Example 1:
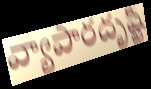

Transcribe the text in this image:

వ్యాపారదృష్టి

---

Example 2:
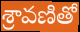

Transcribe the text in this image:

శ్రావణితో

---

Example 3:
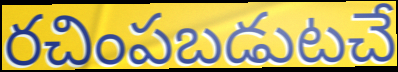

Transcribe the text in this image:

రచింపబడుటచే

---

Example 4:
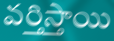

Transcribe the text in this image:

వర్తిస్తాయి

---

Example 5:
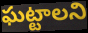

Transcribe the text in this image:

ఘట్టాలని